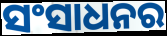
ସଂସାଧନର